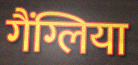
गैंग्लिया